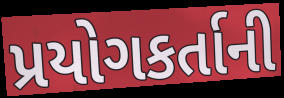
પ્રયોગકર્તાની